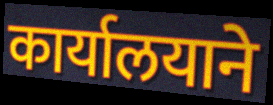
कार्यालयाने